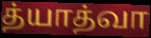
த்யாத்வா